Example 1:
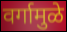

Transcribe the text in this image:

वर्गामुळे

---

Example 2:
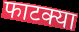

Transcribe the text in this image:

फाटक्या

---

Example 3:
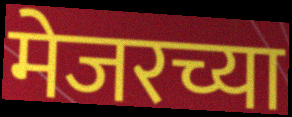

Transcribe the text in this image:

मेजरच्या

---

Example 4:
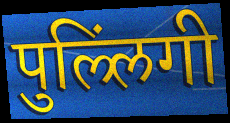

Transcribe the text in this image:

पुल्लिंगी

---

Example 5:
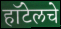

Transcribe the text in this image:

हॉटेलचे